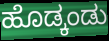
ಹೊಡ್ಕಂಡು